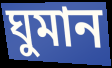
ঘুমান